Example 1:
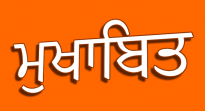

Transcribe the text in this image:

ਮੁਖਾਬਿਤ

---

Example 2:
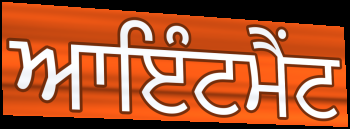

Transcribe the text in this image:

ਆਇੰਟਮੈਂਟ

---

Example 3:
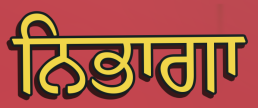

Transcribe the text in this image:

ਨਿਭਾਗਾ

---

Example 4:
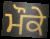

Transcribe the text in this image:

ਮੌਕੇ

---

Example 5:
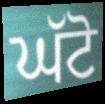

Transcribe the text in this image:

ਘੱਟੋ